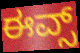
ಈವ್ಸ್